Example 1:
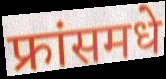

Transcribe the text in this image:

फ्रांसमधे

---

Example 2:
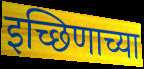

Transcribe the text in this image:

इच्छिणाच्या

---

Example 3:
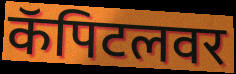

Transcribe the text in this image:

कॅपिटलवर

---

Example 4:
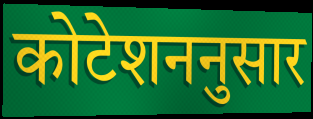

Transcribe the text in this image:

कोटेशननुसार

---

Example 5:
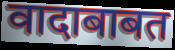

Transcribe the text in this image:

वादाबाबत